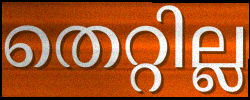
തെറ്റില്ല